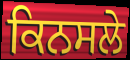
ਕਿਨਸਲੇ